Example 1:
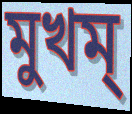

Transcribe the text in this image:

মুখম্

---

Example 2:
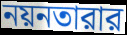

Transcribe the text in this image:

নয়নতারার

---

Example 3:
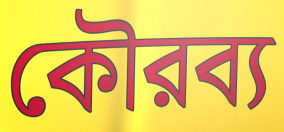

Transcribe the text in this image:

কৌরব্য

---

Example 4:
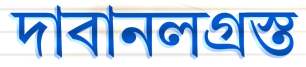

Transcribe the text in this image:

দাবানলগ্রস্ত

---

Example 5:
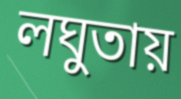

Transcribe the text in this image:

লঘুতায়